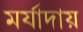
মর্যাদায়